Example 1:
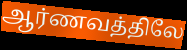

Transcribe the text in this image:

ஆர்ணவத்திலே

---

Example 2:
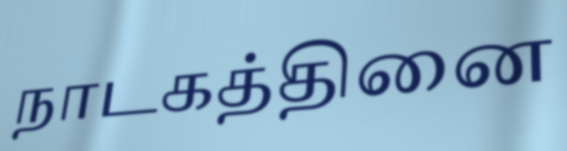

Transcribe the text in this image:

நாடகத்தினை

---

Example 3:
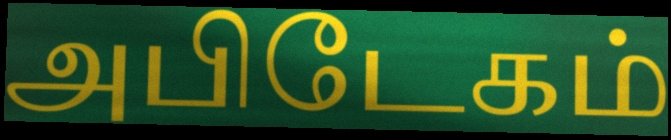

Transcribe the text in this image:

அபிடேகம்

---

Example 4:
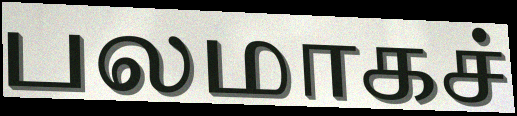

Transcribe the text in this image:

பலமாகச்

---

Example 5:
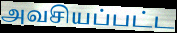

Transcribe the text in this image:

அவசியப்பட்ட